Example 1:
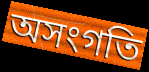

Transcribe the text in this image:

অসংগতি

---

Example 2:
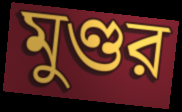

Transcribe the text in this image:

মুণ্ডর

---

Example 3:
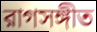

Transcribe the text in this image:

রাগসঙ্গীত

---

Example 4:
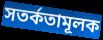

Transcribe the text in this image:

সতর্কতামূলক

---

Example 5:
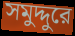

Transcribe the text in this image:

সমুদ্দুরে